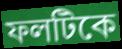
ফলটিকে